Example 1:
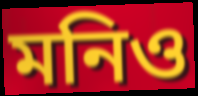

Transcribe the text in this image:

মনিও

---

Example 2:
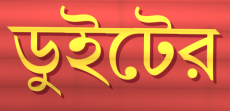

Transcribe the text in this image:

ডুইটের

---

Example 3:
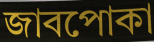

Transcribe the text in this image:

জাবপোকা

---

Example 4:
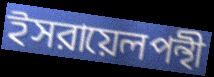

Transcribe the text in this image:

ইসরায়েলপন্থী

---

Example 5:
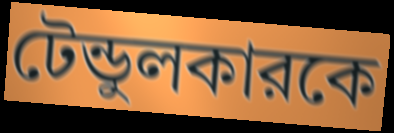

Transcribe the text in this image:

টেন্ডুলকারকে